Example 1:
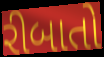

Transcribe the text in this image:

રીબાતો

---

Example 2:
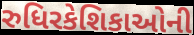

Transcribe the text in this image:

રુધિરકેશિકાઓની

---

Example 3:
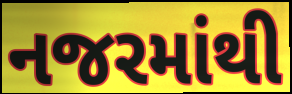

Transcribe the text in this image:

નજરમાંથી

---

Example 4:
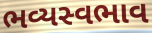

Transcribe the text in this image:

ભવ્યસ્વભાવ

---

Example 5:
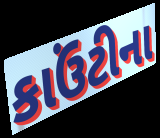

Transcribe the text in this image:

કાઉંટીના